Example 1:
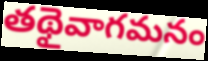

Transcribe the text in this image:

తథైవాగమనం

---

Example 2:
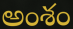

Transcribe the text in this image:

అంశం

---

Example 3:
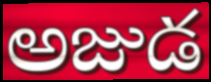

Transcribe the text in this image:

అజుడ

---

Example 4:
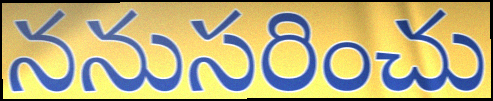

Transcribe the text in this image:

ననుసరించు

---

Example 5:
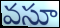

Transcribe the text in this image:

వసూ